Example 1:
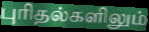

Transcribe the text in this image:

புரிதல்களிலும்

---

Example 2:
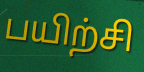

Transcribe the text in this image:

பயிற்சி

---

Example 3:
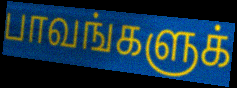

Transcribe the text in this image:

பாவங்களுக்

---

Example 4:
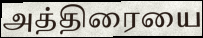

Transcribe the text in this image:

அத்திரையை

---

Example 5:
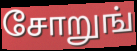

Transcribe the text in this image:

சோறுங்